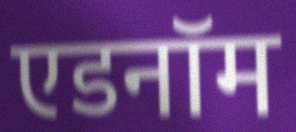
एडनॉम